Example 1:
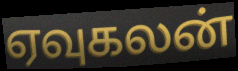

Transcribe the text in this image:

ஏவுகலன்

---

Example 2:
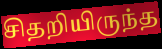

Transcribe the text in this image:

சிதறியிருந்த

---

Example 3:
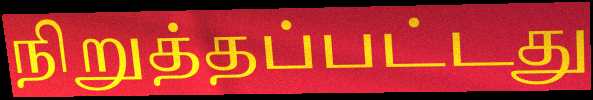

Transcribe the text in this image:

நிறுத்தப்பட்டது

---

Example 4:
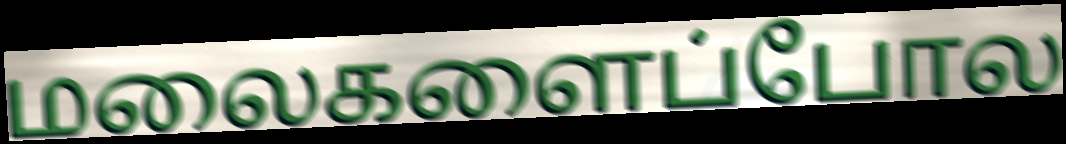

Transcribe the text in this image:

மலைகளைப்போல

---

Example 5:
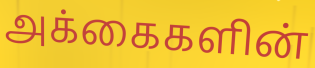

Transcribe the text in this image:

அக்கைகளின்